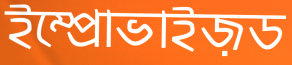
ইম্প্রোভাইজ়ড